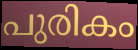
പുരികം